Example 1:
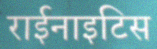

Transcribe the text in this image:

राईनाइटिस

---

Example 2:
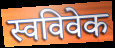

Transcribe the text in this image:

स्वविवेक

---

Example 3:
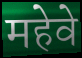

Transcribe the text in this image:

महेवे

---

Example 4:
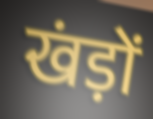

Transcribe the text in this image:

खंड़ों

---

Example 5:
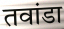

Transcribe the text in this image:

तवांडा